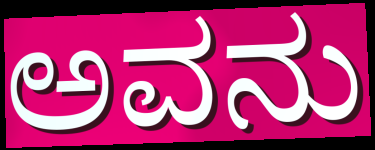
ಅವನು